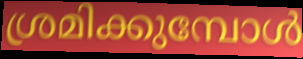
ശ്രമിക്കുമ്പോൾ